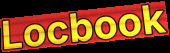
Locbook